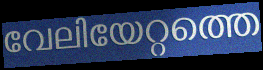
വേലിയേറ്റത്തെ